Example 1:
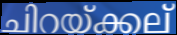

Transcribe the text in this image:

ചിറയ്ക്കല്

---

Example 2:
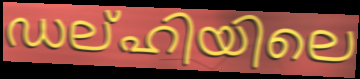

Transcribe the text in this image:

ഡല്ഹിയിലെ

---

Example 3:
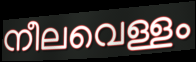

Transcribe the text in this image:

നീലവെള്ളം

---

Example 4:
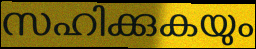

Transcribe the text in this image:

സഹിക്കുകയും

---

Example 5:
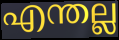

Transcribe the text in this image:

എന്തല്ല